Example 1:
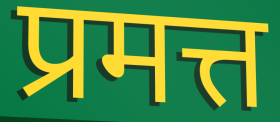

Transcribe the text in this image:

प्रमत्त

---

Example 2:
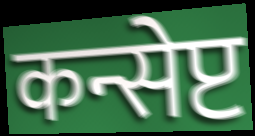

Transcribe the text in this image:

कन्सेप्ट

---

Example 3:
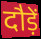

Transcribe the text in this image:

दौड़ें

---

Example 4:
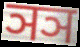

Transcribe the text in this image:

ञञ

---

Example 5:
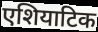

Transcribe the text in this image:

एशियाटिक